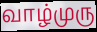
வாழ்முரு